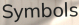
Symbols